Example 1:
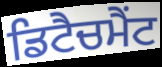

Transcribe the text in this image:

ਡਿਟੈਚਮੈਂਟ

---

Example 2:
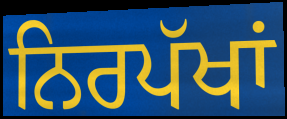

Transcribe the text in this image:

ਨਿਰਪੱਖਾਂ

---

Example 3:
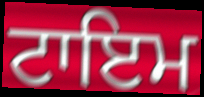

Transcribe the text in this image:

ਟਾਇਮ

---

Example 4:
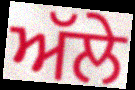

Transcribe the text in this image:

ਅੱਲੇ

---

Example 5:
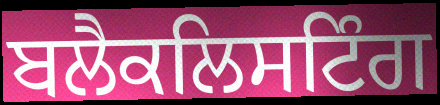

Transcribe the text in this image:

ਬਲੈਕਲਿਸਟਿੰਗ